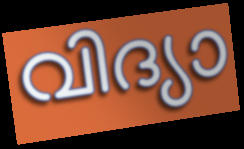
വിദ്യാ